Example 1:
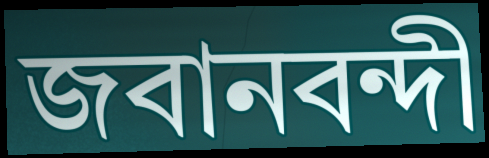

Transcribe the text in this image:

জবানবন্দী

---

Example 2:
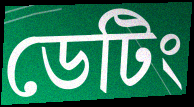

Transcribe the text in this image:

ডেটিং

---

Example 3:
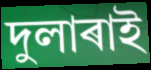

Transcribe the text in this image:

দুলাৰাই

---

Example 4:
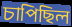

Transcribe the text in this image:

চাপিছিল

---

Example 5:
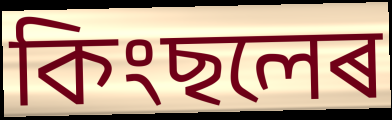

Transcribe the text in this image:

কিংছলেৰ